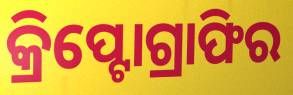
କ୍ରିପ୍ଟୋଗ୍ରାଫିର